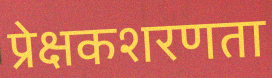
प्रेक्षकशरणता